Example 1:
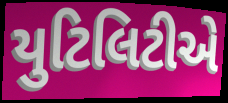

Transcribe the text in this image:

યુટિલિટીએ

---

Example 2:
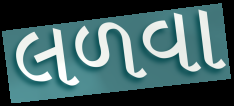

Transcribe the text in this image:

લળવા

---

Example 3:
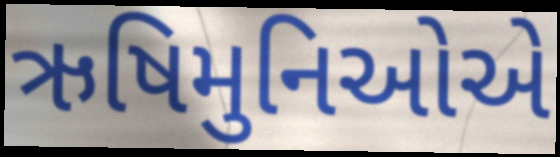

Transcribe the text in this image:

ઋષિમુનિઓએ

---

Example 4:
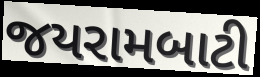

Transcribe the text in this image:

જયરામબાટી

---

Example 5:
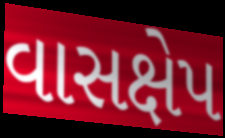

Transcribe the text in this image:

વાસક્ષેપ